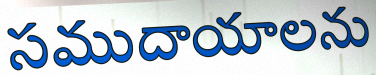
సముదాయాలను